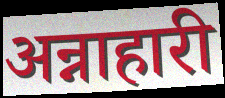
अन्नाहारी